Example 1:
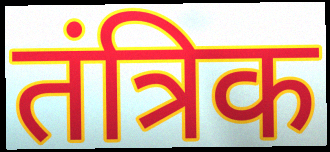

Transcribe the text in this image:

तंत्रिक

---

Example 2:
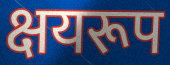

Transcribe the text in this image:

क्षयरूप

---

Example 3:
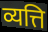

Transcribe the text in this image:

व्यत्ति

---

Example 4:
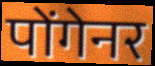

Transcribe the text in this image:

पोंगेनर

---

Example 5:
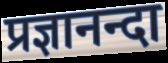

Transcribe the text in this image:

प्रज्ञानन्दा